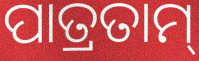
ପାତ୍ରତାମ୍